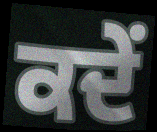
ਕਦੇਂ